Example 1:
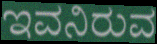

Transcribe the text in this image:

ಇವನಿರುವ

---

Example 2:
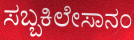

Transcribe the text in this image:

ಸಬ್ಬಕಿಲೇಸಾನಂ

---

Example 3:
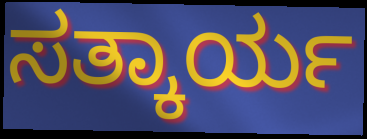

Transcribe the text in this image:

ಸತ್ಕಾರ್ಯ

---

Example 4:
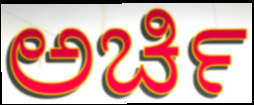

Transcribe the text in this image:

ಅರ್ಚಿ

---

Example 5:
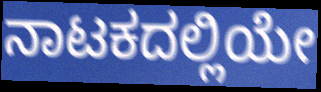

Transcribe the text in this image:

ನಾಟಕದಲ್ಲಿಯೇ